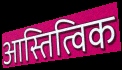
आस्तित्विक